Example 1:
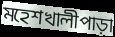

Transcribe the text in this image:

মহেশখালীপাড়া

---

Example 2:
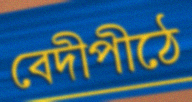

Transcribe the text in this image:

বেদীপীঠে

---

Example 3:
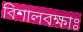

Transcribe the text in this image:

বিশালবক্ষাঃ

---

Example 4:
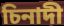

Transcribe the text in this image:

চিনাদী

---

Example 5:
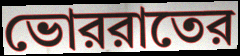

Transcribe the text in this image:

ভোররাতের